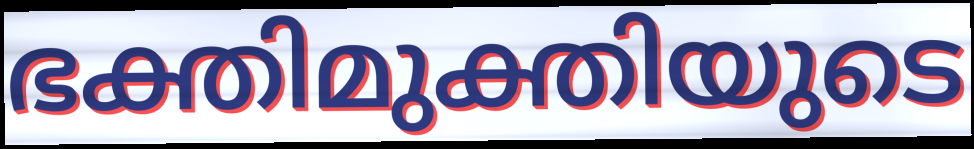
ഭക്തിമുക്തിയുടെ